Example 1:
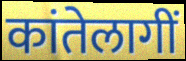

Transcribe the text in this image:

कांतेलागीं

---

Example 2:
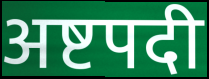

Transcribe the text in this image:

अष्टपदी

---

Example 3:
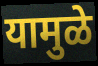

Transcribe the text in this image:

यामुळे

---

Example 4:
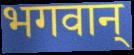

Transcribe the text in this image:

भगवान्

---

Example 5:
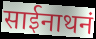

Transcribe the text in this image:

साईनाथनं